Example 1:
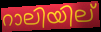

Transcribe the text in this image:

റാലിയില്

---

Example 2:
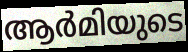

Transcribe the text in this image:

ആർമിയുടെ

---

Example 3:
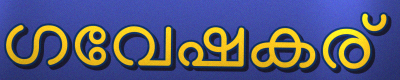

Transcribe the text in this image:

ഗവേഷകര്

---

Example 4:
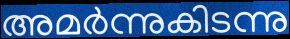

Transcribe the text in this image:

അമർന്നുകിടന്നു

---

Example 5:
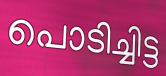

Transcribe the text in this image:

പൊടിച്ചിട്ട